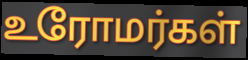
உரோமர்கள்